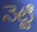
నెట్టి